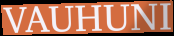
VAUHUNI